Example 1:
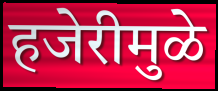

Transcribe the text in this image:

हजेरीमुळे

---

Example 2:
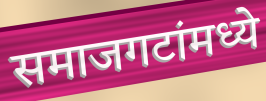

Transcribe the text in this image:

समाजगटांमध्ये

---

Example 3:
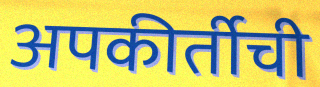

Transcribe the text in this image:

अपकीर्तीची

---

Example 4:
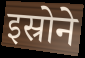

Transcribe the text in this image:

इस्रोने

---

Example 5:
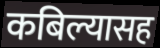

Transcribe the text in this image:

कबिल्यासह